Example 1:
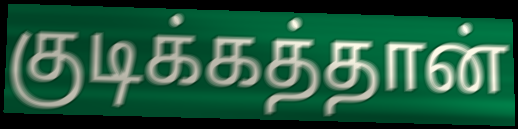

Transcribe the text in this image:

குடிக்கத்தான்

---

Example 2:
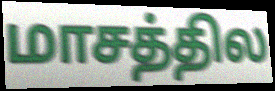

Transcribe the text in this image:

மாசத்தில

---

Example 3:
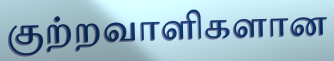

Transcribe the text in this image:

குற்றவாளிகளான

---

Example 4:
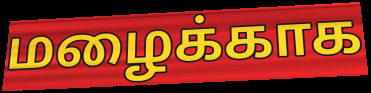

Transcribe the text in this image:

மழைக்காக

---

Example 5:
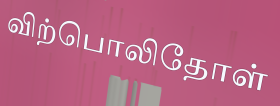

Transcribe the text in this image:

விற்பொலிதோள்